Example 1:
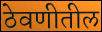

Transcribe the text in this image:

ठेवणीतील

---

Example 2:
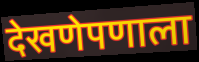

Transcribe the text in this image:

देखणेपणाला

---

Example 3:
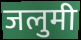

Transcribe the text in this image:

जलुमी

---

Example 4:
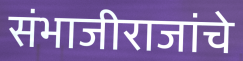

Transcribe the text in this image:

संभाजीराजांचे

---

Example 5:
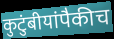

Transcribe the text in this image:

कुटुंबीयांपैकीच